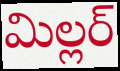
మిల్లర్